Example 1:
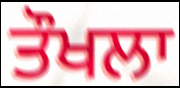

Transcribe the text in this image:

ਤੌਖਲਾ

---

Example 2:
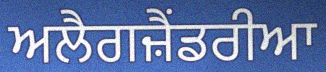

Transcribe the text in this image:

ਅਲੈਗਜ਼ੈਂਡਰੀਆ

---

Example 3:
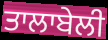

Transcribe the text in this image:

ਤਾਲਾਬੇਲੀ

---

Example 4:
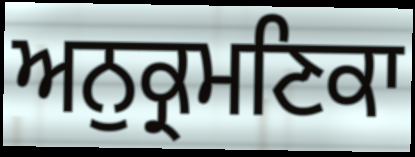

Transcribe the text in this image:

ਅਨੁਕ੍ਰਮਣਿਕਾ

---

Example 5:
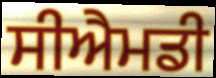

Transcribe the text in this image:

ਸੀਐਮਡੀ